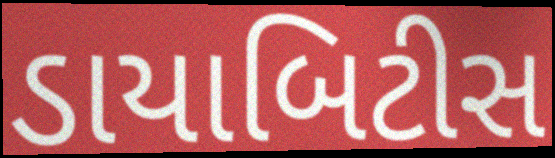
ડાયાબિટીસ